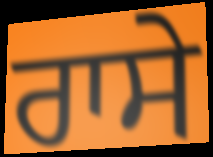
ਰਾਸੇ